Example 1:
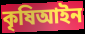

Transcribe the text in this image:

কৃষিআইন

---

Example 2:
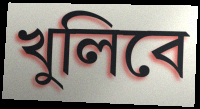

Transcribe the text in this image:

খুলিবে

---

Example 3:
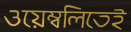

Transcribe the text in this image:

ওয়েম্বলিতেই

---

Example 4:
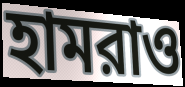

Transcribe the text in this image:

হামরাও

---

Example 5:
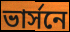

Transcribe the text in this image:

ভার্সনে